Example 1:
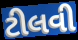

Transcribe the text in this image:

ટીલવી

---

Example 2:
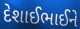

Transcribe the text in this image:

દેશાઈભાઈને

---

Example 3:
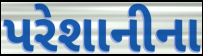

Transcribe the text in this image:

પરેશાનીના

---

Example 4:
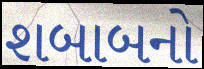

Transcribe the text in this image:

શબાબનો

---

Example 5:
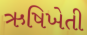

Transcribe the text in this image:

ઋષિખેતી